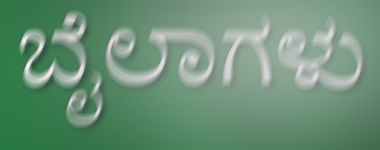
ಬೈಲಾಗಳು